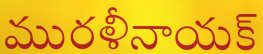
మురళీనాయక్